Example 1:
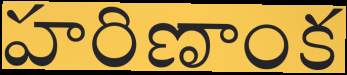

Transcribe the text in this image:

హరిణాంక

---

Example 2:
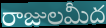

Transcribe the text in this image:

రాజులమీద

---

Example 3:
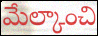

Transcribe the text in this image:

మేల్కాంచి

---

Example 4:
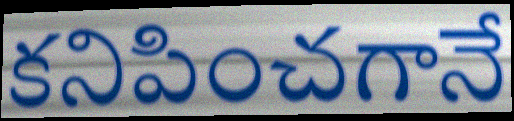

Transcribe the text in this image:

కనిపించగానే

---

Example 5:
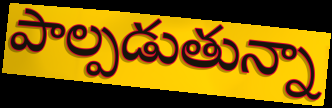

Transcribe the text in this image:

పాల్పడుతున్నా